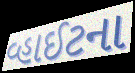
વ્હાઈટના